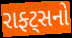
રાફ્ટ્સનો